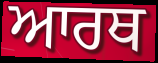
ਆਰਥ